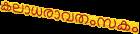
കലാധരാവതംസകം